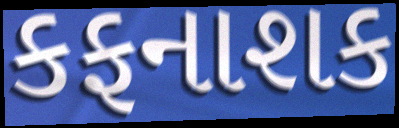
કફનાશક